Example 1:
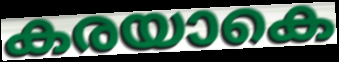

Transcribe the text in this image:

കരയാകെ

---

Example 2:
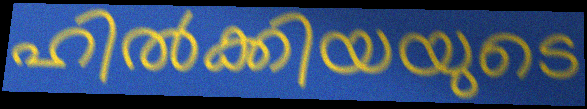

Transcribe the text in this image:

ഹിൽക്കിയയുടെ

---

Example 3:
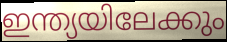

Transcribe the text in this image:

ഇന്ത്യയിലേക്കും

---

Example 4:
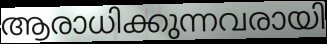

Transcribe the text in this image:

ആരാധിക്കുന്നവരായി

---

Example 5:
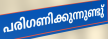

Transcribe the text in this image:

പരിഗണിക്കുന്നുണ്ടു്